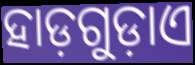
ହାଡ଼ଗୁଡ଼ାଏ